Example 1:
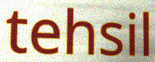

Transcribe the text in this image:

tehsil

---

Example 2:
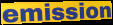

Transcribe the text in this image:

emission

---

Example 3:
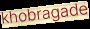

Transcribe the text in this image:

khobragade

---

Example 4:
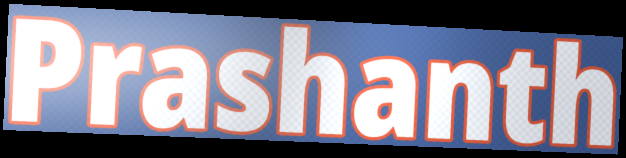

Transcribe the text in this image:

Prashanth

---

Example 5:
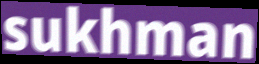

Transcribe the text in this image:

sukhman